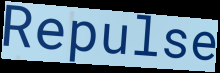
Repulse